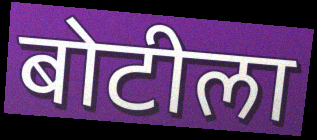
बोटीला